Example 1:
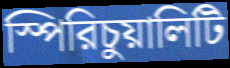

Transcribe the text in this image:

স্পিরিচুয়ালিটি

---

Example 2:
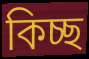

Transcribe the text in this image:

কিচ্ছ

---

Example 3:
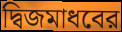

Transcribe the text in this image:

দ্বিজমাধবের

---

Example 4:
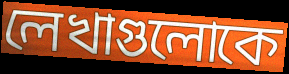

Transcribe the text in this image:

লেখাগুলোকে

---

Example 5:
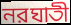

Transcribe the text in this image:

নরঘাতী